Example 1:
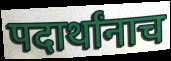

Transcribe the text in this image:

पदार्थांनाच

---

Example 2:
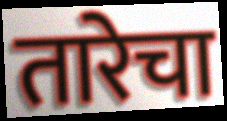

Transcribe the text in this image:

तारेचा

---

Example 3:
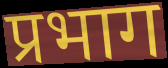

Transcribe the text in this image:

प्रभाग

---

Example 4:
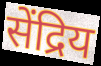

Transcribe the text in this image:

सेंद्रिय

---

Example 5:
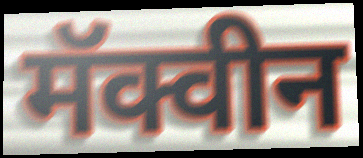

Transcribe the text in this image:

मॅक्वीन